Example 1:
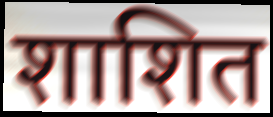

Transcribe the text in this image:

शाशित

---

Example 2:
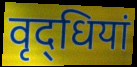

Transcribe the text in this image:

वृद्धियां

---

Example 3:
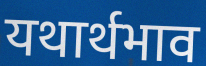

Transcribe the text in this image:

यथार्थभाव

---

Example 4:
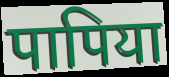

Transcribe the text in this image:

पापिया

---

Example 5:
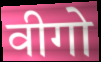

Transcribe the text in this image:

वीगो